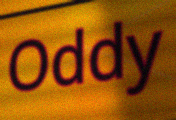
Oddy